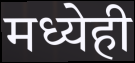
मध्येही